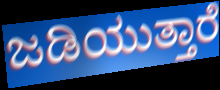
ಜಡಿಯುತ್ತಾರೆ